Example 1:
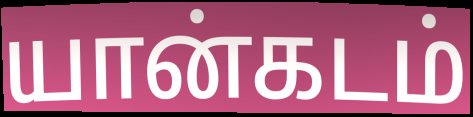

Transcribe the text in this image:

யான்கடம்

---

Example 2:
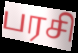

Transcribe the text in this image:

பரசி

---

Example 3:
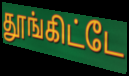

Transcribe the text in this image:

தூங்கிட்டே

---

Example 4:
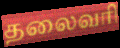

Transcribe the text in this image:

தலைவரி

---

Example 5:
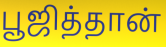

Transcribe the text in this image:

பூஜித்தான்